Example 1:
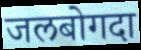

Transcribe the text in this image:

जलबोगदा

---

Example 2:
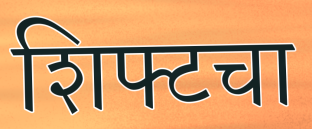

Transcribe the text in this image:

शिफ्टचा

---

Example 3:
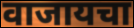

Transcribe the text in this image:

वाजायचा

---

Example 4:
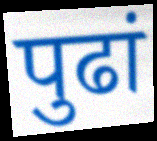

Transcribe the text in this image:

पुढां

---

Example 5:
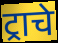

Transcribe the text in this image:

ट्राचे